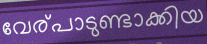
വേര്പാടുണ്ടാക്കിയ